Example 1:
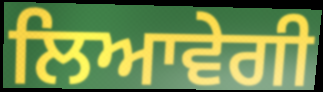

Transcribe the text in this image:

ਲਿਆਵੇਗੀ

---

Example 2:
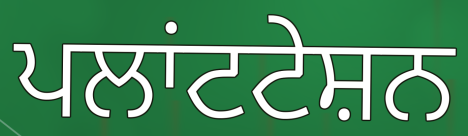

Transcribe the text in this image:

ਪਲਾਂਟਟੇਸ਼ਨ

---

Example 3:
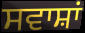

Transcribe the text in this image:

ਸਵਾਸ਼ਾਂ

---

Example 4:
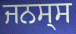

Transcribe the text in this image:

ਜਨਸ੍ਸ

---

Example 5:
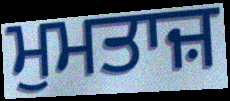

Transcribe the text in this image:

ਮੁਮਤਾਜ਼